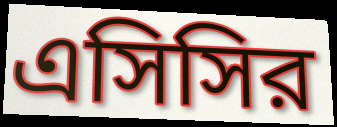
এসিসির